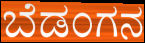
ಬೆಡಂಗನ